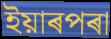
ইয়াৰপৰা